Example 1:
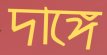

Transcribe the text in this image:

দাঙ্গে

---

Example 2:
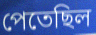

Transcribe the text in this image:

পেতেছিল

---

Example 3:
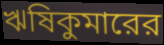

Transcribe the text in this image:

ঋষিকুমারের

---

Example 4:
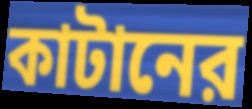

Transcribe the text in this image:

কাটানের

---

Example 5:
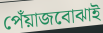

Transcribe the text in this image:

পেঁয়াজবোঝাই